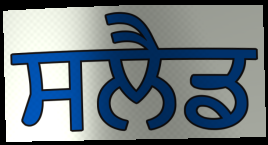
ਸਲੈਡ